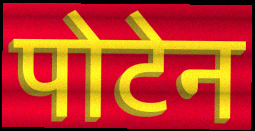
पोटेन